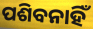
ପଶିବନାହିଁ